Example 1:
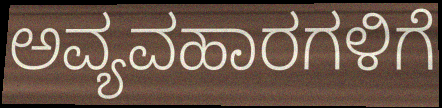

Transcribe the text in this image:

ಅವ್ಯವಹಾರಗಳಿಗೆ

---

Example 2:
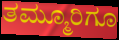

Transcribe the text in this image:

ತಮ್ಮೂರಿಗೂ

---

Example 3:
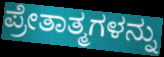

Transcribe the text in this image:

ಪ್ರೇತಾತ್ಮಗಳನ್ನು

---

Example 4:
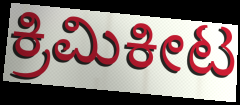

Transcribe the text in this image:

ಕ್ರಿಮಿಕೀಟ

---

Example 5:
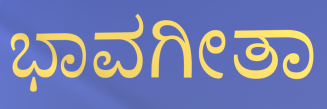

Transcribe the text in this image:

ಭಾವಗೀತಾ